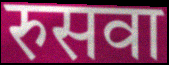
रुसवा